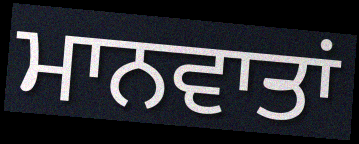
ਮਾਨਵਾਤਾਂ